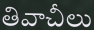
తివాచీలు